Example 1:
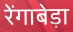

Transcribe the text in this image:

रेंगाबेड़ा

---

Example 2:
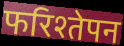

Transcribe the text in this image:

फरिश्तेपन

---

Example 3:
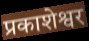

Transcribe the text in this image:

प्रकाशेश्वर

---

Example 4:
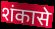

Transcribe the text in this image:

शंकासे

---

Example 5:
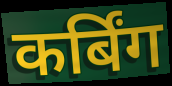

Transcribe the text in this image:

कर्बिंग